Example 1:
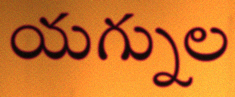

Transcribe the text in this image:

యగ్నుల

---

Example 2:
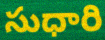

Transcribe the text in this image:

సుధారి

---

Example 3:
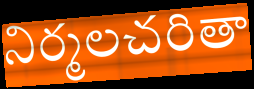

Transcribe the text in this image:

నిర్మలచరితా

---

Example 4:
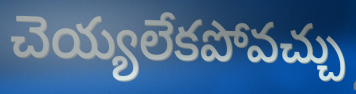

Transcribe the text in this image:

చెయ్యలేకపోవచ్చు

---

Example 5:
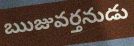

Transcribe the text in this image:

ఋజువర్తనుడు